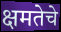
क्षमतेचे